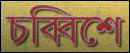
চব্বিশে